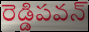
రెడ్డిపవన్